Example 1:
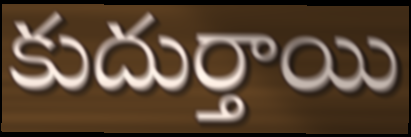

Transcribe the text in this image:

కుదుర్తాయి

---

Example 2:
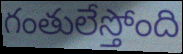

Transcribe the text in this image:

గంతులేస్తోంది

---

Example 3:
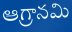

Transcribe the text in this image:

ఆగ్రానమి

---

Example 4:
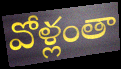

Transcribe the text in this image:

వోళ్లంతా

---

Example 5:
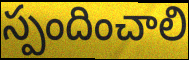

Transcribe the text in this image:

స్పందించాలి